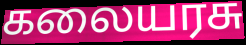
கலையரசு